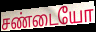
சண்டையோ